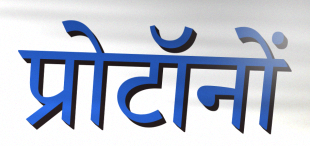
प्रोटॉनों